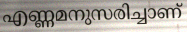
എണ്ണമനുസരിച്ചാണ്